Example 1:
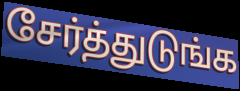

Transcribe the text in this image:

சேர்த்துடுங்க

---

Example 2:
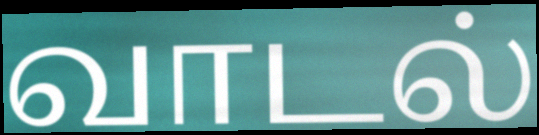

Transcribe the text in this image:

வாடல்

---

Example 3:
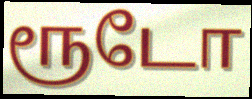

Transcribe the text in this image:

ரூடோ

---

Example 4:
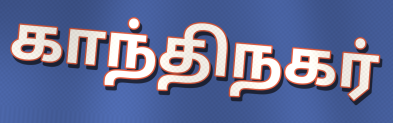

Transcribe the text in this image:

காந்திநகர்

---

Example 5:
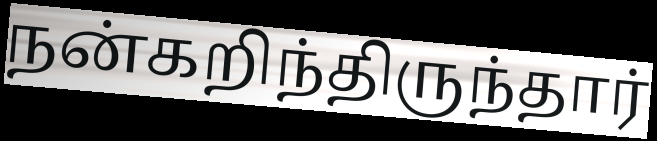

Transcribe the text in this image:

நன்கறிந்திருந்தார்